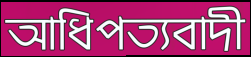
আধিপত্যবাদী